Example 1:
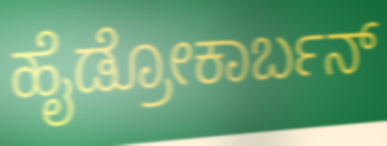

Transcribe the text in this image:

ಹೈಡ್ರೋಕಾರ್ಬನ್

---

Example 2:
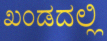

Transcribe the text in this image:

ಖಂಡದಲ್ಲಿ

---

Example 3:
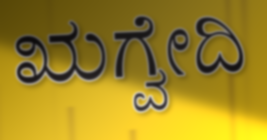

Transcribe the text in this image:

ಋಗ್ವೇದಿ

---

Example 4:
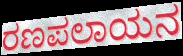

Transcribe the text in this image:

ರಣಪಲಾಯನ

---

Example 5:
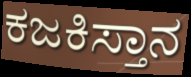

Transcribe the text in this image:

ಕಜಕಿಸ್ತಾನ